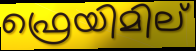
ഫ്രെയിമില്